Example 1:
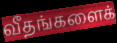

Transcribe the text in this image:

வீதங்களைக்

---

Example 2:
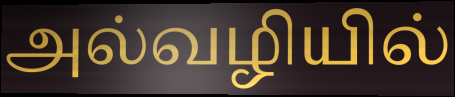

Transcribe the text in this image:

அல்வழியில்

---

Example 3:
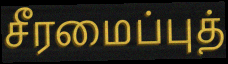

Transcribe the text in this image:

சீரமைப்புத்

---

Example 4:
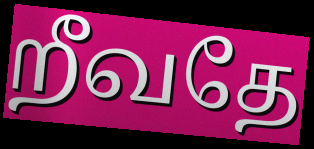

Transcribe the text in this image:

றீவதே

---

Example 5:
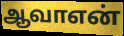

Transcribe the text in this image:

ஆவாஎன்